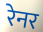
रेनर